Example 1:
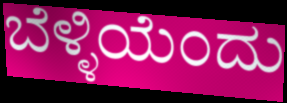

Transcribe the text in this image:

ಬೆಳ್ಳಿಯೆಂದು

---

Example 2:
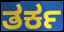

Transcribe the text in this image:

ತರ್ಕ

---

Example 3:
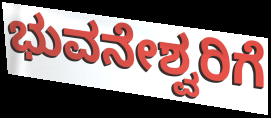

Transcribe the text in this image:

ಭುವನೇಶ್ವರಿಗೆ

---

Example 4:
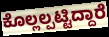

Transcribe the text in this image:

ಕೊಲ್ಲಲ್ಪಟ್ಟಿದ್ದಾರೆ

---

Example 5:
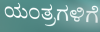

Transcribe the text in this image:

ಯಂತ್ರಗಳಿಗೆ